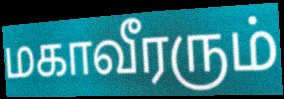
மகாவீரரும்